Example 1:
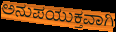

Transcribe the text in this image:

ಅನುಪಯುಕ್ತವಾಗಿ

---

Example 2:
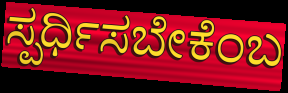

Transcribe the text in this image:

ಸ್ಪರ್ಧಿಸಬೇಕೆಂಬ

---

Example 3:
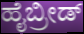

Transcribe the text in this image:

ಹೈಬ್ರೀಡ್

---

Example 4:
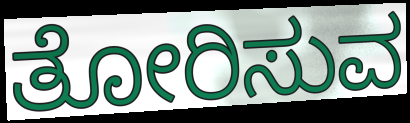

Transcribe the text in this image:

ತೋರಿಸುವ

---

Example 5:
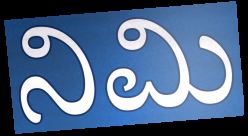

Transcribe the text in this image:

ನಿಮಿ